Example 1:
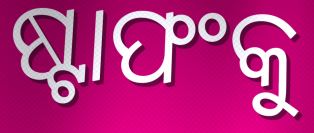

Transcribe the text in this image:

ଷ୍ଟାଫଂକୁ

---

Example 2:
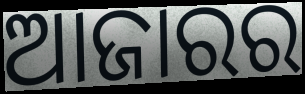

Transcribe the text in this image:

ଆଜାରର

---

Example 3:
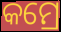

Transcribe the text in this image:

କମ୍ରେ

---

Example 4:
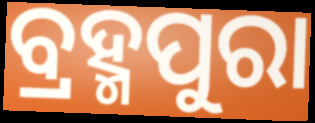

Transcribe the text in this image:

ବ୍ରହ୍ମପୁରା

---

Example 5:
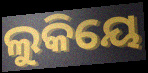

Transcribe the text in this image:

ଲୁକିୟେ